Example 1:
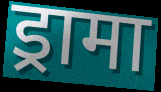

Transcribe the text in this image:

ड्रामा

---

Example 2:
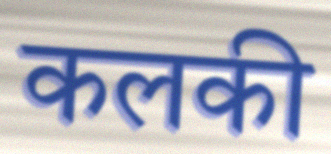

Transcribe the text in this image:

कलकी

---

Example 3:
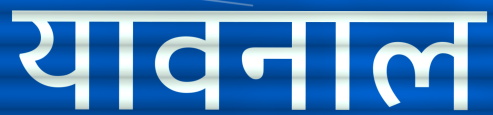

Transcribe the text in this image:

यावनाल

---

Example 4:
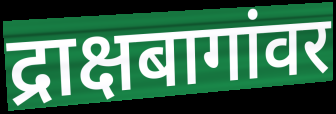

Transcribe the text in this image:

द्राक्षबागांवर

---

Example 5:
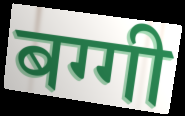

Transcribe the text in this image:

बग्गी